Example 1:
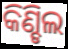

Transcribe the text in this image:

କିଣ୍ଡିଲ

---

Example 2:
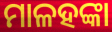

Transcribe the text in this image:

ମାଳହଙ୍କା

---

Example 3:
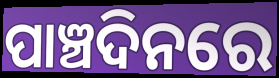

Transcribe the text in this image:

ପାଞ୍ଚଦିନରେ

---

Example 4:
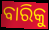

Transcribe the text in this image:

ବାରିକୁ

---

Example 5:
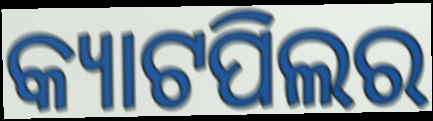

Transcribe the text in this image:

କ୍ୟାଟପିଲର